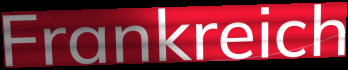
Frankreich